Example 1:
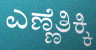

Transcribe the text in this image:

ಎಣ್ಣೆತಿಕ್ಕಿ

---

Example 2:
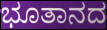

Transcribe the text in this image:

ಭೂತಾನದ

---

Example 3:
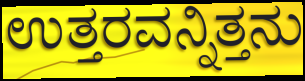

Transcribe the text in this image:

ಉತ್ತರವನ್ನಿತ್ತನು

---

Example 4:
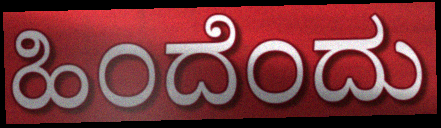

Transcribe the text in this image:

ಹಿಂದೆಂದು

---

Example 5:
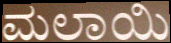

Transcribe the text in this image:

ಮಲಾಯಿ